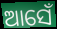
ଆସେଁ